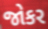
જોકર